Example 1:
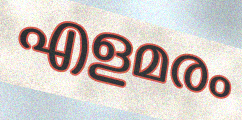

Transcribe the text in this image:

എളമരം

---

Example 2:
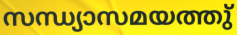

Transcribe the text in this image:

സന്ധ്യാസമയത്തു്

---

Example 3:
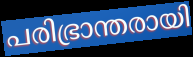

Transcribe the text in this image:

പരിഭ്രാന്തരായി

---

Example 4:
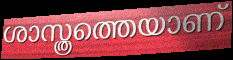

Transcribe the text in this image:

ശാസ്ത്രത്തെയാണ്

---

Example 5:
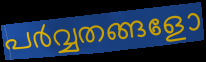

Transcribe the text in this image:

പർവ്വതങ്ങളോ